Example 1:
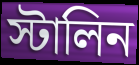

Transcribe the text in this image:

স্টালিন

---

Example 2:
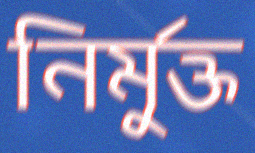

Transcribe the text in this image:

নির্মুক্ত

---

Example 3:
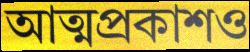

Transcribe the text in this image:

আত্মপ্রকাশও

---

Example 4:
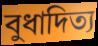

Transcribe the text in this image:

বুধাদিত্য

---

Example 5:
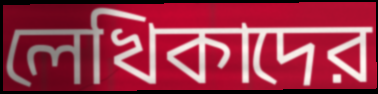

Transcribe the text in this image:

লেখিকাদের